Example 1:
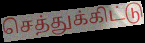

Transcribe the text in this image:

செத்துக்கிட்டு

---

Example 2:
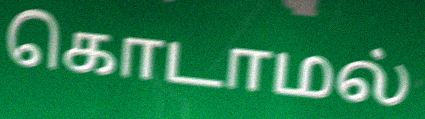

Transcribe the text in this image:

கொடாமல்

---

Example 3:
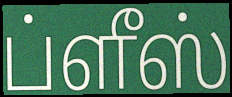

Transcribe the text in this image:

ப்ளீஸ்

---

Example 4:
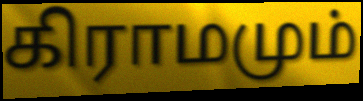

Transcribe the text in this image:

கிராமமும்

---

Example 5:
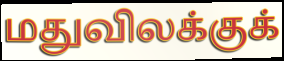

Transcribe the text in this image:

மதுவிலக்குக்